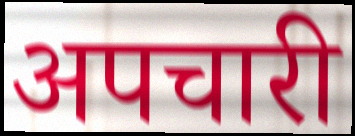
अपचारी